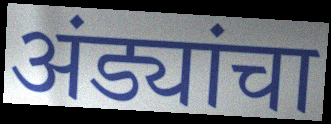
अंड्यांचा